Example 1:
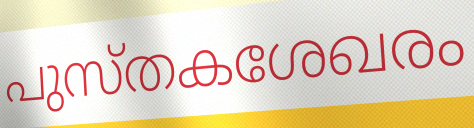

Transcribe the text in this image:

പുസ്തകശേഖരം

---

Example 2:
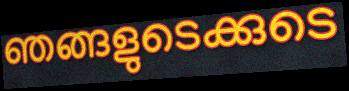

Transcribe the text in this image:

ഞങ്ങളുടെക്കുടെ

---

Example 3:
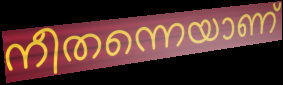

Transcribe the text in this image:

നീതന്നെയാണ്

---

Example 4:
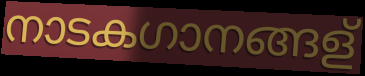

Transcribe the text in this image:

നാടകഗാനങ്ങള്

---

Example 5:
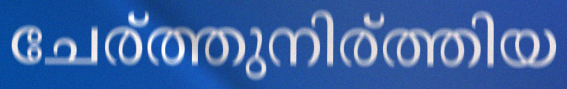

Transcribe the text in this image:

ചേര്ത്തുനിര്ത്തിയ